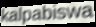
kalpabiswa